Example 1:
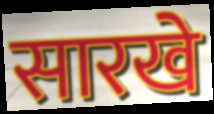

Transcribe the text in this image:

सारखे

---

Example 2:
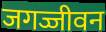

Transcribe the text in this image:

जगज्जीवन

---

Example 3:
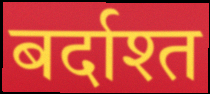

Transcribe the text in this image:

बर्दाश्त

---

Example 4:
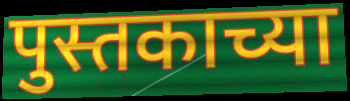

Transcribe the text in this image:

पुस्तकाच्या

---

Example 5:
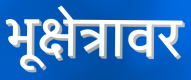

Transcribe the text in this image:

भूक्षेत्रावर